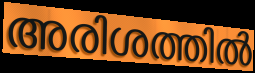
അരിശത്തിൽ